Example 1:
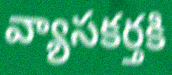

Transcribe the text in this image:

వ్యాసకర్తకి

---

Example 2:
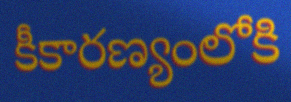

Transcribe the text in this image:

కీకారణ్యంలోకి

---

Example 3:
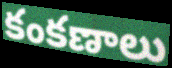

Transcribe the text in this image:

కంకణాలు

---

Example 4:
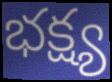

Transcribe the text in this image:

భక్ష్య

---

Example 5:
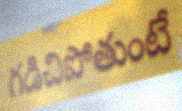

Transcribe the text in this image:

గడిచిపోతుంటే